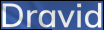
Dravid